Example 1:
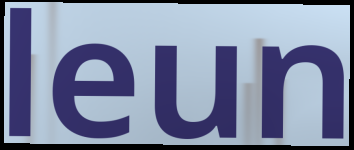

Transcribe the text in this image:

leun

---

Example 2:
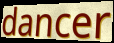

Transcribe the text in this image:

dancer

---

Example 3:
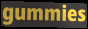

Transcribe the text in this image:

gummies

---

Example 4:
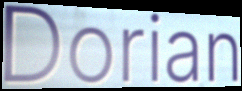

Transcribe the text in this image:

Dorian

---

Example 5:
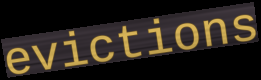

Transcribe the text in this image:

evictions